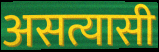
असत्यासी